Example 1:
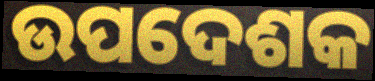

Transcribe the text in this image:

ଉପଦେଶକ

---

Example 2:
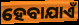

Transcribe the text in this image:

ହେବାଯାଏଁ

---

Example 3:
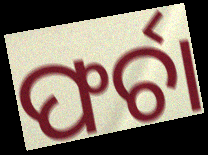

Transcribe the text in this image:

ଫର୍ଚା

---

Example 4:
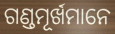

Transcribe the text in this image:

ଗଣ୍ଡମୂର୍ଖମାନେ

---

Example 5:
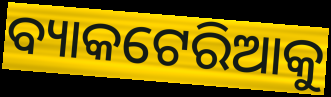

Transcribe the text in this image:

ବ୍ୟାକଟେରିଆକୁ